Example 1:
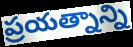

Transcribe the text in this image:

ప్రయత్నాన్ని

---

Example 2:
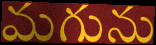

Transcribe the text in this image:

మగును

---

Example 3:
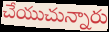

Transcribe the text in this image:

చేయుచున్నారు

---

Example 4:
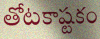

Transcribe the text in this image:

తోటకాష్టకం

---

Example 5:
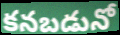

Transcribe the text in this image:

కనబడునో